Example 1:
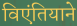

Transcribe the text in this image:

विएंतियाने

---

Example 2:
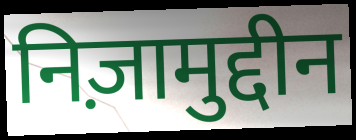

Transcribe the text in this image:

निज़ामुद्दीन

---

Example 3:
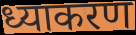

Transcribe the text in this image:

ध्याकरण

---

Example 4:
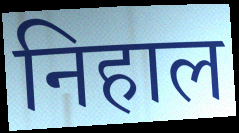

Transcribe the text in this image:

निहाल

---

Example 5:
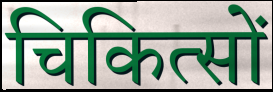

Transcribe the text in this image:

चिकित्सों